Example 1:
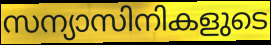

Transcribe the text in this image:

സന്യാസിനികളുടെ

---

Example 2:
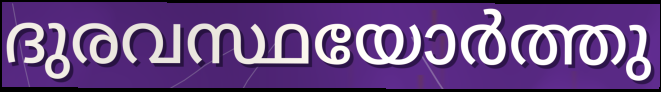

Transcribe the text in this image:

ദുരവസ്ഥയോർത്തു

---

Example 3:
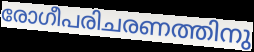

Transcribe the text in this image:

രോഗീപരിചരണത്തിനു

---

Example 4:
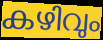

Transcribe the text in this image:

കഴിവും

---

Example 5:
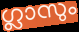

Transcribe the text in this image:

ഗ്ലാസും